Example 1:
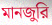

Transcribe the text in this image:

মানজুরি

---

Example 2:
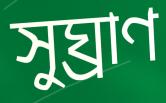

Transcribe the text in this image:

সুঘ্রাণ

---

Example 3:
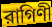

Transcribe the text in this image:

রাগিণী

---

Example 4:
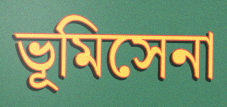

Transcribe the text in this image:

ভূমিসেনা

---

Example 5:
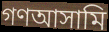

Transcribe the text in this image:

গণআসামি